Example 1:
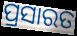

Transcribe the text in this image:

ପ୍ରସାରତ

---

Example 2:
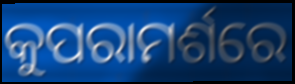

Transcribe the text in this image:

କୁପରାମର୍ଶରେ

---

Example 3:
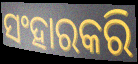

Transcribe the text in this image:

ସଂହାରକରି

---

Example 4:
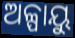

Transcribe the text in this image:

ଅଳ୍ପାୟୁ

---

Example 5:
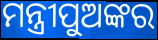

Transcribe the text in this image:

ମନ୍ତ୍ରୀପୁଅଙ୍କର